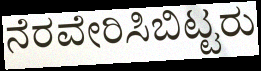
ನೆರವೇರಿಸಿಬಿಟ್ಟರು